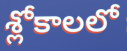
శ్లోకాలలో